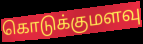
கொடுக்குமளவு